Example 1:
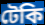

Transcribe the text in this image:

টেকি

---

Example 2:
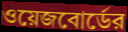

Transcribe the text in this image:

ওয়েজবোর্ডের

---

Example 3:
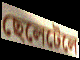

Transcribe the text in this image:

ছেলেটেলে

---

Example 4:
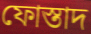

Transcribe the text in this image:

ফোস্তাদ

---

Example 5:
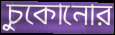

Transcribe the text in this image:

চুকোনোর